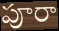
పూరా